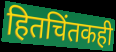
हितचिंतकही